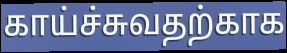
காய்ச்சுவதற்காக